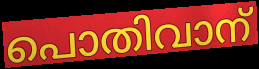
പൊതിവാന്